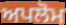
ਅਪਲੋਮ